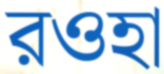
রওহা